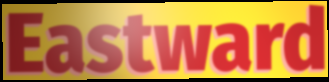
Eastward